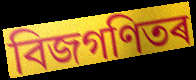
বিজগণিতৰ